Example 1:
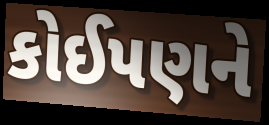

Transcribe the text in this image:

કોઈપણને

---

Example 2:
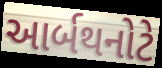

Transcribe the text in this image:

આર્બથનોટે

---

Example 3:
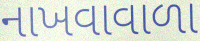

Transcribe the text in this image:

નાખવાવાળા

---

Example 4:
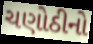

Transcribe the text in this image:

ચણોઠીનો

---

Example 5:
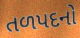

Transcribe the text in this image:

તળપદનો